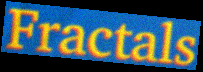
Fractals